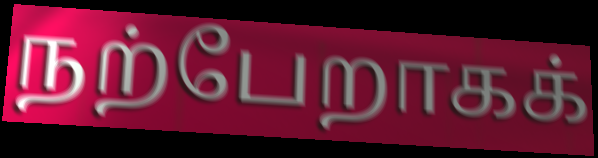
நற்பேறாகக்